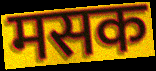
मसक